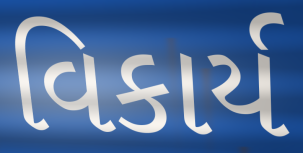
વિકાર્ય